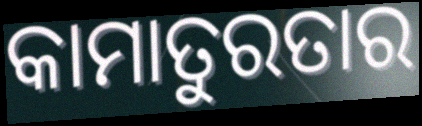
କାମାତୁରତାର